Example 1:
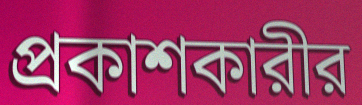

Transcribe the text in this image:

প্রকাশকারীর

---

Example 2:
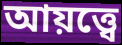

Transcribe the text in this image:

আয়ত্ত্বে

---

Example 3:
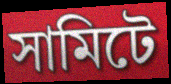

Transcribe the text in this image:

সামিটে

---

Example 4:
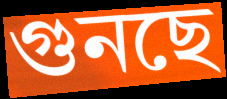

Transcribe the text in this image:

গুনছে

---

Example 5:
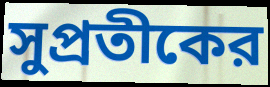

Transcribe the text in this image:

সুপ্রতীকের